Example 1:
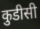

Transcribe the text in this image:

कुडीसी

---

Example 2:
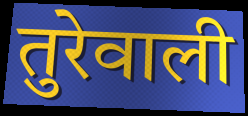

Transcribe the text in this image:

तुरेवाली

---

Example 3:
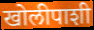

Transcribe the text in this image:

खोलीपाशी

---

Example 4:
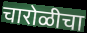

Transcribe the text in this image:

चारोळीचा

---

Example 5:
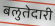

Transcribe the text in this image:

बलुतेदारी